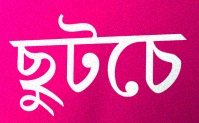
ছুটচে